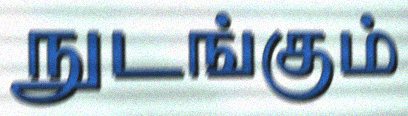
நுடங்கும்